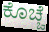
ಕೊಚ್ಚೆ